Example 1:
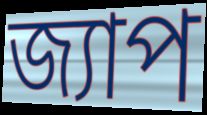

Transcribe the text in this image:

জ্যাপ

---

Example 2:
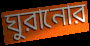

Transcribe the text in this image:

ঘুরানোর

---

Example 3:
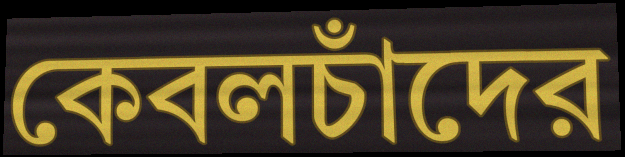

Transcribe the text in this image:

কেবলচাঁদের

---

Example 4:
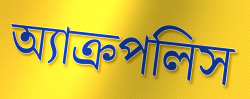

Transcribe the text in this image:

অ্যাক্রপলিস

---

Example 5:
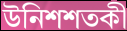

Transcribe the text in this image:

উনিশশতকী